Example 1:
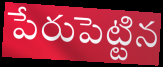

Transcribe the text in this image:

పేరుపెట్టిన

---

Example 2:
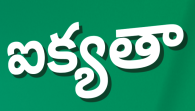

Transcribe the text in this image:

ఐక్యతా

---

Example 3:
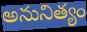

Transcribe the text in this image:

అనునిత్యం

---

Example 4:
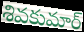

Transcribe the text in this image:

శివకుమార్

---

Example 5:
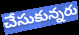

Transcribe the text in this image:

చేసుకున్నరు